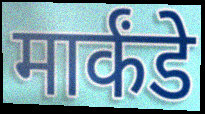
मार्कंडे